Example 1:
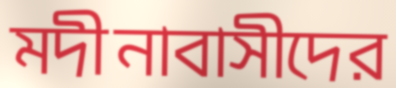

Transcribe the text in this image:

মদীনাবাসীদের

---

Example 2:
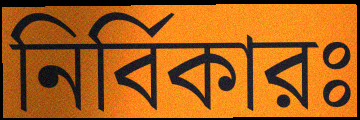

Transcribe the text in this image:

নির্বিকারঃ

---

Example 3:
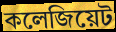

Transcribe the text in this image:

কলেজিয়েট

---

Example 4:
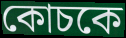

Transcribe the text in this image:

কোচকে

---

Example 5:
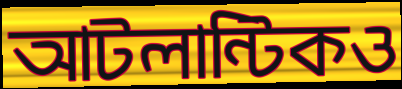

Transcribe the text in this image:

আটলান্টিকও